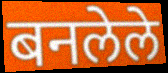
बनलेले